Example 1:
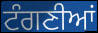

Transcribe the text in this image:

ਟੰਗਣੀਆਂ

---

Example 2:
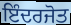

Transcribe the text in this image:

ਇੰਦਰਜੋਤ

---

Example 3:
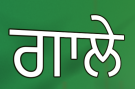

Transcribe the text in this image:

ਗਾਲੇ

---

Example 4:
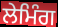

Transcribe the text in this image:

ਲੇਮਿੰਗ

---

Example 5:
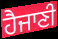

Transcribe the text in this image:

ਹੈਜਾਣੀ